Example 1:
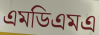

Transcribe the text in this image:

এমডিএমএ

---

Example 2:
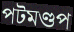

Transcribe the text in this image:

পটমণ্ডপ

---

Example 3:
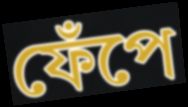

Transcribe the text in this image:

ফেঁপে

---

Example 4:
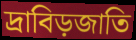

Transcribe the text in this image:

দ্রাবিড়জাতি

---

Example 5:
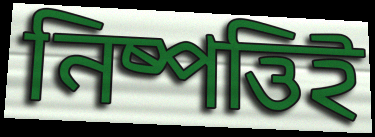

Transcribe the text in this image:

নিষ্পত্তিই